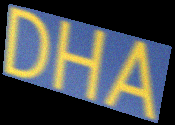
DHA